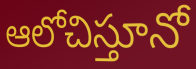
ఆలోచిస్తూనో